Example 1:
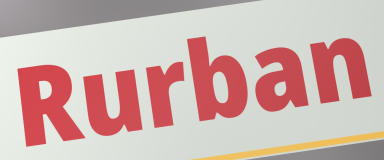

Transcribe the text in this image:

Rurban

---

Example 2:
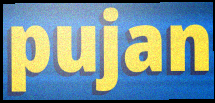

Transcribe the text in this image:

pujan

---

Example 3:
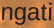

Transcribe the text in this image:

ngati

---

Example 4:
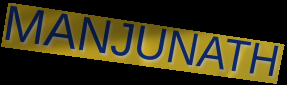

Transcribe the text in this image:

MANJUNATH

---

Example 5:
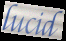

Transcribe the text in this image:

lucid